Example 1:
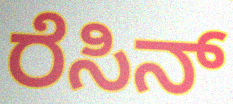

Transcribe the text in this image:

ರೆಸಿನ್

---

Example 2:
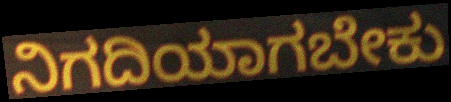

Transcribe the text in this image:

ನಿಗದಿಯಾಗಬೇಕು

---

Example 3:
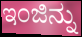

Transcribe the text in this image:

ಇಂಜಿನ್ನು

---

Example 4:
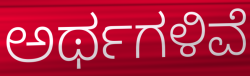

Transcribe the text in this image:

ಅರ್ಥಗಳಿವೆ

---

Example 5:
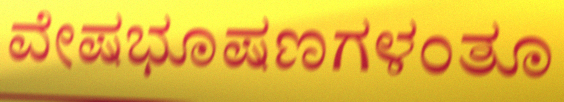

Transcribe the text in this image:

ವೇಷಭೂಷಣಗಳಂತೂ